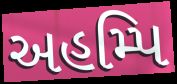
અહમ્પિ